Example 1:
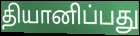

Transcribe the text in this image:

தியானிப்பது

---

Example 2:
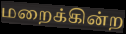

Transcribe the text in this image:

மறைக்கின்ற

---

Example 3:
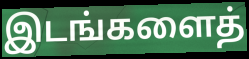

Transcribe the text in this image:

இடங்களைத்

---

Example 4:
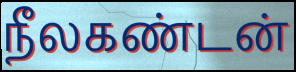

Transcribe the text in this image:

நீலகண்டன்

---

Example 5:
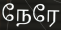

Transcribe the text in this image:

நேரே